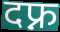
दफ्न